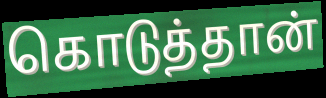
கொடுத்தான்